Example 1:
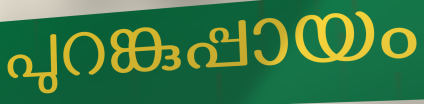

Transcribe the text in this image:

പുറങ്കുപ്പായം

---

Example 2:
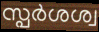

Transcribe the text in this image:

സ്പർശശ്വ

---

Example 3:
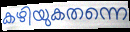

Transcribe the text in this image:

കഴിയുകതന്നെ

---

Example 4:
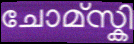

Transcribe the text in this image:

ചോമ്സ്കി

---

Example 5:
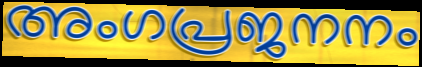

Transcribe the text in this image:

അംഗപ്രജനനം